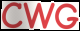
CWG